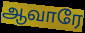
ஆவாரே